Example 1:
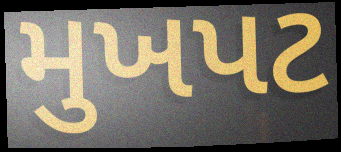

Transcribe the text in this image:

મુખપટ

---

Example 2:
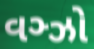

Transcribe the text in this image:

વઞ્ઝો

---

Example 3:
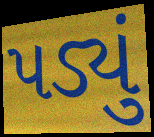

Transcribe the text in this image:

પડ્યું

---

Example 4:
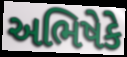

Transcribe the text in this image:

અભિષેકે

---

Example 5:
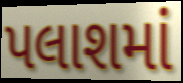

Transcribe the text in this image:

પલાશમાં